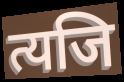
त्यजि